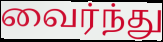
வைர்ந்து